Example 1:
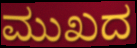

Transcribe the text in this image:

ಮುಖದ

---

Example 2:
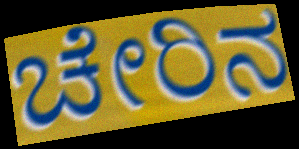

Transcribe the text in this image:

ಚೇರಿನ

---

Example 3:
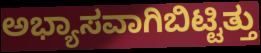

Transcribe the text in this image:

ಅಭ್ಯಾಸವಾಗಿಬಿಟ್ಟಿತ್ತು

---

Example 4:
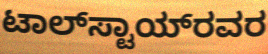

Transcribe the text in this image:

ಟಾಲ್‌ಸ್ಟಾಯ್‌ರವರ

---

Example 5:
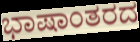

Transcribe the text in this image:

ಭಾಷಾಂತರದ